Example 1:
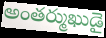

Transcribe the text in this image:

అంతర్ముఖుడై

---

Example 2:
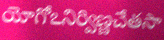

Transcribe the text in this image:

యోగోఽనిర్విణ్ణచేతసా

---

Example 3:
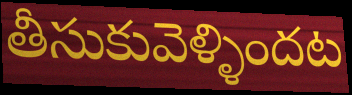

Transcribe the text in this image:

తీసుకువెళ్ళిందట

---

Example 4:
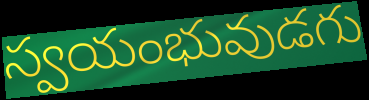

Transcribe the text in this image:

స్వయంభువుడగు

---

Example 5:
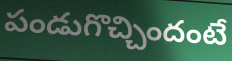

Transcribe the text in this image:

పండుగొచ్చిందంటే